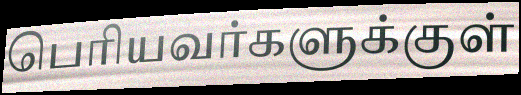
பெரியவர்களுக்குள்